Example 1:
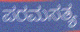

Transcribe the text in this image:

ಪರಮಸತ್ಯ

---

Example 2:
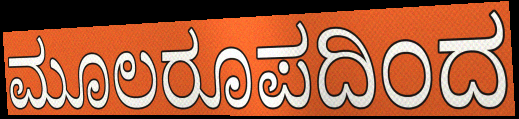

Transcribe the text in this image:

ಮೂಲರೂಪದಿಂದ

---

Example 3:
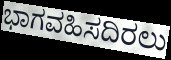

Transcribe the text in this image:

ಭಾಗವಹಿಸದಿರಲು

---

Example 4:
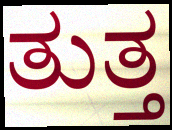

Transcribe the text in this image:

ತುತ್ತ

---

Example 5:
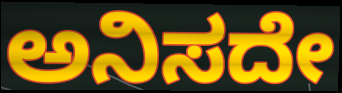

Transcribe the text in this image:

ಅನಿಸದೇ